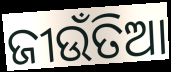
ଜୀଉଁତିଆ